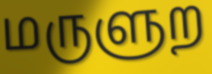
மருளுற